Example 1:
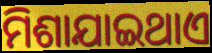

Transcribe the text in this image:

ମିଶାଯାଇଥାଏ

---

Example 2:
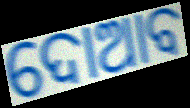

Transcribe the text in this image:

ଦୋଆବ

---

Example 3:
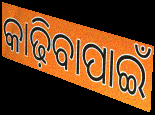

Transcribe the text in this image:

କାଢ଼ିବାପାଇଁ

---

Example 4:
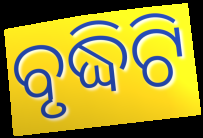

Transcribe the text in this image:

ବୃଦ୍ଧିଟି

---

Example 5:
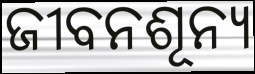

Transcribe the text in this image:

ଜୀବନଶୂନ୍ୟ